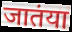
जातंया